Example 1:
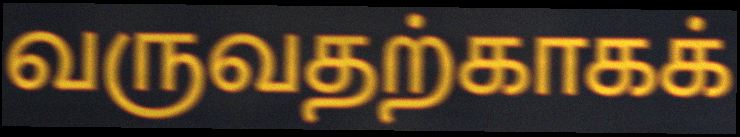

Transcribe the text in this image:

வருவதற்காகக்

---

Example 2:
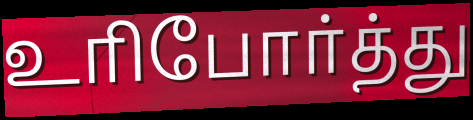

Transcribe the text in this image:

உரிபோர்த்து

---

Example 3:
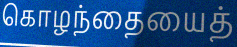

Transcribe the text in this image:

கொழந்தையைத்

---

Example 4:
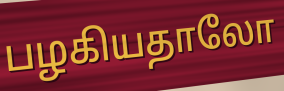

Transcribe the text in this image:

பழகியதாலோ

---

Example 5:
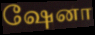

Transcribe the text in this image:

ஷேனா